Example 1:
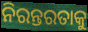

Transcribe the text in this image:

ନିରନ୍ତରତାକୁ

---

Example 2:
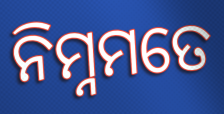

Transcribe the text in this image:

ନିମ୍ନମତେ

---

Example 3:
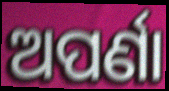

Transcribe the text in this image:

ଅପର୍ଣା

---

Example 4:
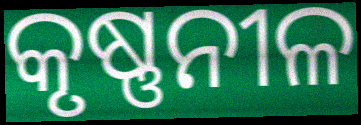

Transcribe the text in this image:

କୃଷ୍ଣନୀଳ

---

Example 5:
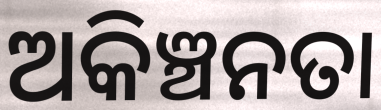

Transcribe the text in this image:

ଅକିଞ୍ଚନତା